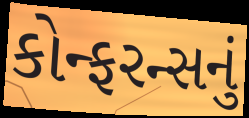
કોન્ફરન્સનું